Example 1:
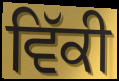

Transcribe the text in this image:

ਵਿੱਕੀ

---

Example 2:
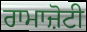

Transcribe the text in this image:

ਰਾਮਾਜ਼ੋਟੀ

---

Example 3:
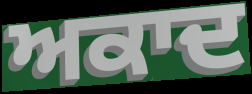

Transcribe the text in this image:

ਅਕਾਦ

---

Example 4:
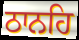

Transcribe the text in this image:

ਠਾਨਹਿ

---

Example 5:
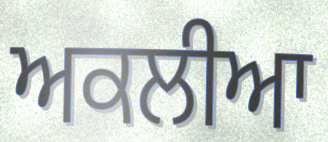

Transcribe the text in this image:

ਅਕਲੀਆ